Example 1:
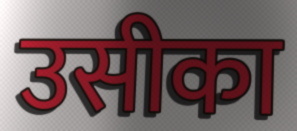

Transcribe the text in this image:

उसीका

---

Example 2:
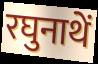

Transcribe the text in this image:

रघुनाथें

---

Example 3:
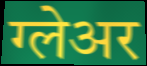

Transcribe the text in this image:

ग्लेअर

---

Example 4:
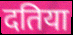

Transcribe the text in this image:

दतिया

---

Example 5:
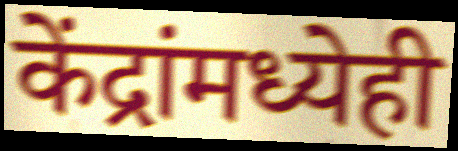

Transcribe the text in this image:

केंद्रांमध्येही